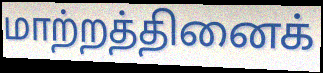
மாற்றத்தினைக்